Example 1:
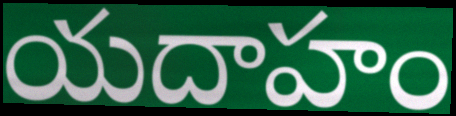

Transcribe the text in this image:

యదాహం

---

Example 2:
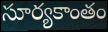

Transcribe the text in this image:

సూర్యకాంతం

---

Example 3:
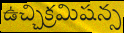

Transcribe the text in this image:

ఉచ్చిక్రమిషన్స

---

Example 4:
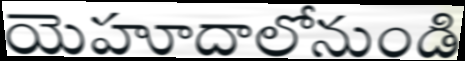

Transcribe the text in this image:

యెహూదాలోనుండి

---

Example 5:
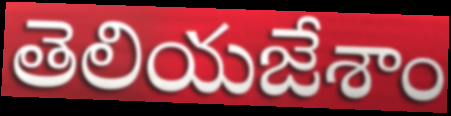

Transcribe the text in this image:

తెలియజేశాం